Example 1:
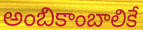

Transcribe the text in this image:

అంబికాంబాలికే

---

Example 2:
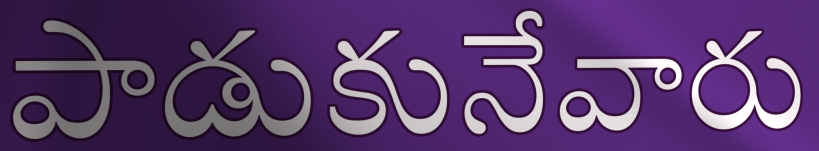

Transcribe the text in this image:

పాడుకునేవారు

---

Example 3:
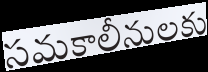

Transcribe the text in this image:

సమకాలీనులకు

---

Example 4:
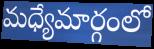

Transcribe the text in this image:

మధ్యేమార్గంలో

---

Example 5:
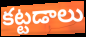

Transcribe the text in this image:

కట్టడాలు